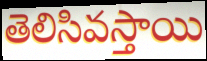
తెలిసివస్తాయి